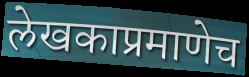
लेखकाप्रमाणेच